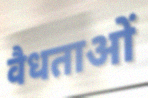
वैधताओं